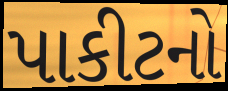
પાકીટનો